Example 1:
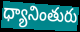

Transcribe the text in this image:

ధ్యానింతురు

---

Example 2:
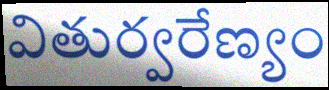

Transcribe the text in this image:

వితుర్వరేణ్యం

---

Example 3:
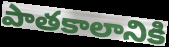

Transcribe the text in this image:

పాతకాలానికి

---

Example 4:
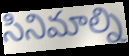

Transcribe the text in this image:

సినిమాల్ని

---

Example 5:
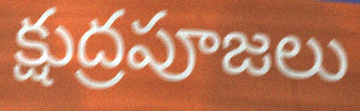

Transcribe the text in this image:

క్షుద్రపూజలు